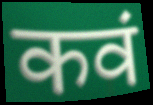
कवं